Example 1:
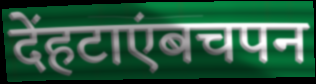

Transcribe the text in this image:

देंहटाएंबचपन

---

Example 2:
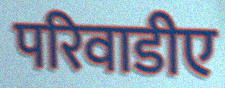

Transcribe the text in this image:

परिवाडीए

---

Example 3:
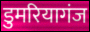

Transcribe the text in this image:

डुमरियागंज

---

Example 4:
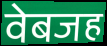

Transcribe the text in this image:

वेबजह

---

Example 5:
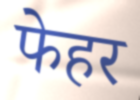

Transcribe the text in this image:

फेहर